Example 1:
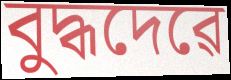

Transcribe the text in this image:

বুদ্ধদেৱে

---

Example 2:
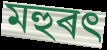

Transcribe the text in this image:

মহুৰৎ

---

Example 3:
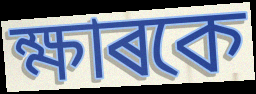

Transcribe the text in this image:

ক্ষাৰকে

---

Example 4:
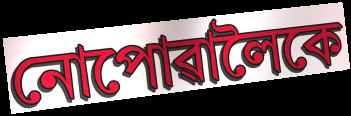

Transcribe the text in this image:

নোপোৱালৈকে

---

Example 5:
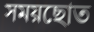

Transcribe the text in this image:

সময়ছোত